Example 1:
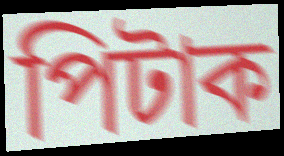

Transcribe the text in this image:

পিটাক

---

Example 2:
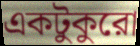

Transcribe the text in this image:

একটুকুরো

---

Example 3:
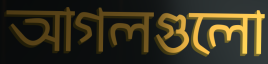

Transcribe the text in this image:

আগলগুলো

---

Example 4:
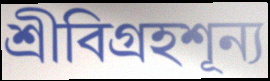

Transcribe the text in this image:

শ্রীবিগ্রহশূন্য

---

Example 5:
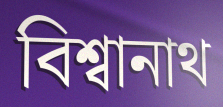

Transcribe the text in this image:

বিশ্বানাথ